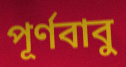
পূর্ণবাবু